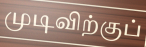
முடிவிற்குப்